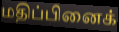
மதிப்பினைக்